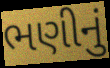
ભણીનું